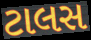
ટાલસ